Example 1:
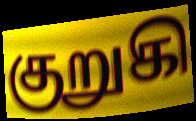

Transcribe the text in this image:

குறுகி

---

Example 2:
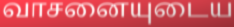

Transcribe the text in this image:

வாசனையுடைய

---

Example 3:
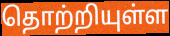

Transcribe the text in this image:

தொற்றியுள்ள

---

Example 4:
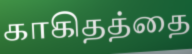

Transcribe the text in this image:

காகிதத்தை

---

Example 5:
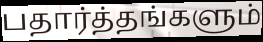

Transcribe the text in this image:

பதார்த்தங்களும்